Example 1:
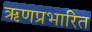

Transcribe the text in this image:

ॠणप्रभारित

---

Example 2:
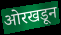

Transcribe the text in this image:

ओरखडून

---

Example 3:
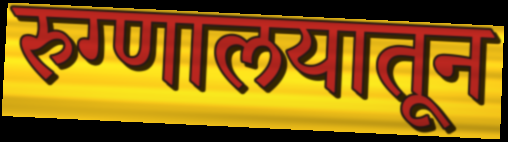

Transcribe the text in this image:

रुग्णालयातून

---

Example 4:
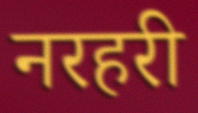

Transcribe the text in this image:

नरहरी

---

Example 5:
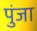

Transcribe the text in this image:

पुंजा